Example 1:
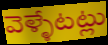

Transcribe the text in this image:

వెళ్ళేటట్లు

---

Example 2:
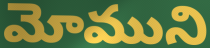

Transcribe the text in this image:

మోముని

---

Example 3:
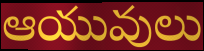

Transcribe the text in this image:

ఆయువులు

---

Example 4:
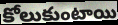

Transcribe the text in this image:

కోలుకుంటాయి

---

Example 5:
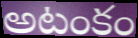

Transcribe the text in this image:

అటంకం